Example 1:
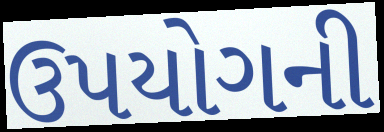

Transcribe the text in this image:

ઉપયોગની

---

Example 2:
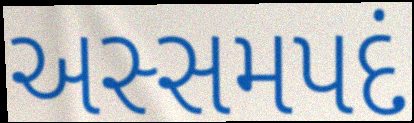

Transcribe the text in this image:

અસ્સમપદં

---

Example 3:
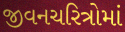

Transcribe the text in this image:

જીવનચરિત્રોમાં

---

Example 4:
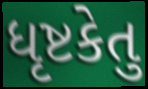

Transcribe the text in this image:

ધૃષ્ટકેતુ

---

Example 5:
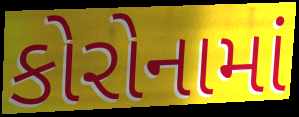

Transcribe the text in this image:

કોરોનામાં